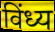
विंध्य